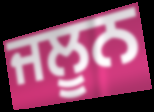
ਜਲੂਨ